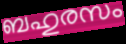
ബഹുരസം